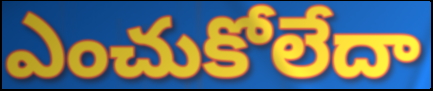
ఎంచుకోలేదా